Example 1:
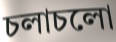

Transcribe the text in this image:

চলাচলো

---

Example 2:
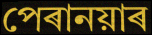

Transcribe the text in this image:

পেৰানয়াৰ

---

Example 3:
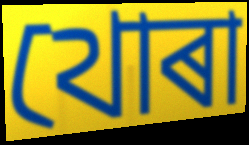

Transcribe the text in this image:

থোৰা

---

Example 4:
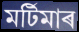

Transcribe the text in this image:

মৰ্টিমাৰ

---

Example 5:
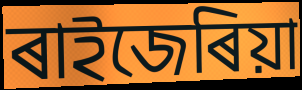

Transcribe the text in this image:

ৰাইজেৰিয়া